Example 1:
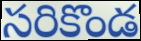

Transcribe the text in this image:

సరికొండ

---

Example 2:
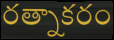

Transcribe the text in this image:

రత్నాకరం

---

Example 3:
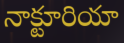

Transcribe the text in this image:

నాక్టూరియా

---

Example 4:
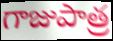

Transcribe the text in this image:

గాజుపాత్ర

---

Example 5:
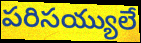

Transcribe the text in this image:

పరిసయ్యులే